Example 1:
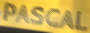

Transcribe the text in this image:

PASCAL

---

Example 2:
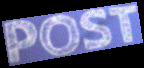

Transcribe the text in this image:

POST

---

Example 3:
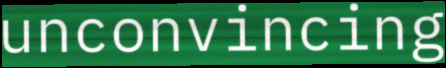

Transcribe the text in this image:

unconvincing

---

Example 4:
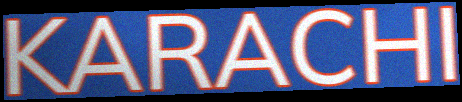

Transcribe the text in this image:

KARACHI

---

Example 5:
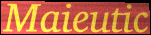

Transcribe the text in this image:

Maieutic